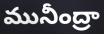
మునీంద్రా